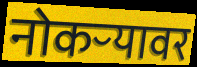
नोकऱ्यावर